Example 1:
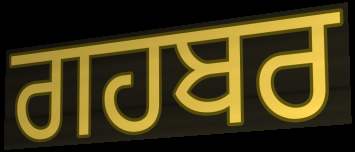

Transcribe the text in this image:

ਗਹਬਰ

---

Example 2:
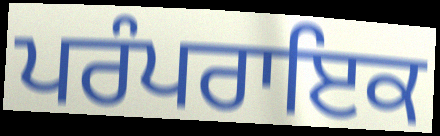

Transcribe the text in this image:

ਪਰੰਪਰਾਇਕ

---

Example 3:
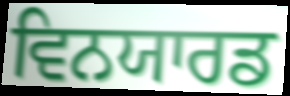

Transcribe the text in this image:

ਵਿਨਯਾਰਡ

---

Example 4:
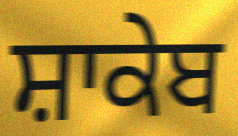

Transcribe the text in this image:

ਸ਼ਾਕੇਬ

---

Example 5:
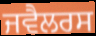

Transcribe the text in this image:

ਜਵੈਲਰਸ